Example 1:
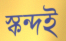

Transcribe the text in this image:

স্কন্দই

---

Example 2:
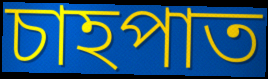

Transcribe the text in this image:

চাহপাত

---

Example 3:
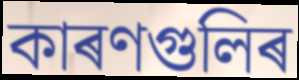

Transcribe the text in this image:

কাৰণগুলিৰ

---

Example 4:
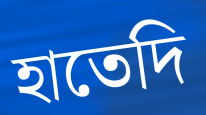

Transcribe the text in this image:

হাতেদি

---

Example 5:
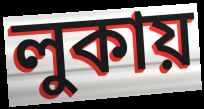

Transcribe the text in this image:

লুকায়